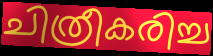
ചിത്രീകരിച്ച